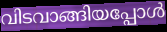
വിടവാങ്ങിയപ്പോൾ